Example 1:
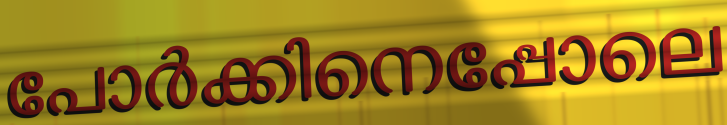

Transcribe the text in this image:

പോർക്കിനെപ്പോലെ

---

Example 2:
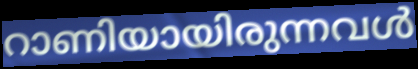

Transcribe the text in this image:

റാണിയായിരുന്നവൾ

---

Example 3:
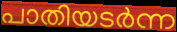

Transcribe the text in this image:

പാതിയടർന്ന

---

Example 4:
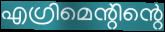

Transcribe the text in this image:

എഗ്രിമെന്റിന്റെ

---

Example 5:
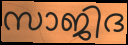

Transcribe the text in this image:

സാജിദ